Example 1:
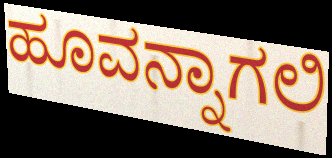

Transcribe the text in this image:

ಹೂವನ್ನಾಗಲಿ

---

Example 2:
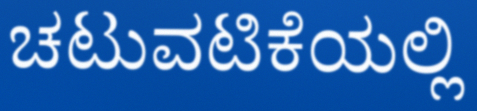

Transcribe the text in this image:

ಚಟುವಟಿಕೆಯಲ್ಲಿ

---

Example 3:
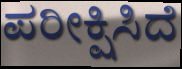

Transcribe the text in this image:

ಪರೀಕ್ಷಿಸಿದೆ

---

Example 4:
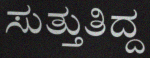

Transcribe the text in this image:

ಸುತ್ತುತಿದ್ದ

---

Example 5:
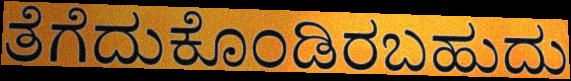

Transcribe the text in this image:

ತೆಗೆದುಕೊಂಡಿರಬಹುದು